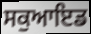
ਸਕੁਆਇਡ